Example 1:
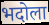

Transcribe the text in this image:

भदोला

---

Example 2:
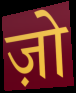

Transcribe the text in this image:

ज़ो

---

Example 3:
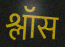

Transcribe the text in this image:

श्लॉस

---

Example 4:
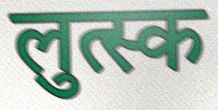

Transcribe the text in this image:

लुत्स्क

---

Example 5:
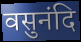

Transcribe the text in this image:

वसुनंदि